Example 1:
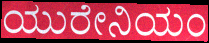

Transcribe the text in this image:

ಯುರೇನಿಯಂ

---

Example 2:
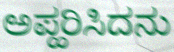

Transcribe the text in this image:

ಅಪ್ಹರಿಸಿದನು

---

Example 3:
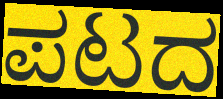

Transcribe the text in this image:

ಪಟದ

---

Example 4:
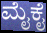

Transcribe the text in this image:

ಮೈಕೈ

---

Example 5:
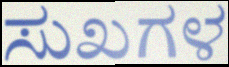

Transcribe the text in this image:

ಸುಖಗಳ